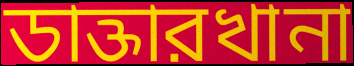
ডাক্তারখানা